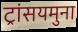
ट्रांसयमुना